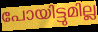
പോയിട്ടുമില്ല